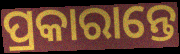
ପ୍ରକାରାନ୍ତେ